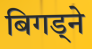
बिगड्ने